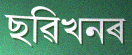
ছৱিখনৰ